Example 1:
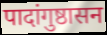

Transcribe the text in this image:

पादांगुष्ठासन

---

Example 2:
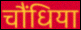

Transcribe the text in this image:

चौंधिया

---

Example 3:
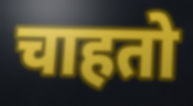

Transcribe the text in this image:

चाहतो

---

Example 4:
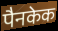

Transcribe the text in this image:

पैनकेक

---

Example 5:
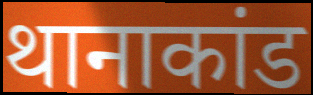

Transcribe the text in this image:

थानाकांड